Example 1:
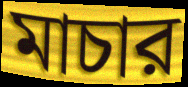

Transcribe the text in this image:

মাচার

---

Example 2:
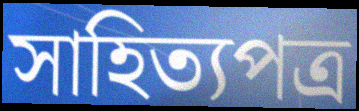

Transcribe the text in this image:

সাহিত্যপত্র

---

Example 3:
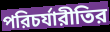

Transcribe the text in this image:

পরিচর্যারীতির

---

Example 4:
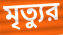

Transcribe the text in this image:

মৃত্যুর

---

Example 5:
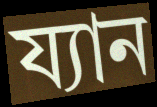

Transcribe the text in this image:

য্যান